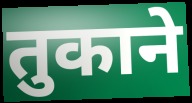
तुकाने